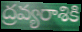
ద్రవ్యరాశికి